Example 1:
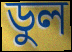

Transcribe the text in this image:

ডুল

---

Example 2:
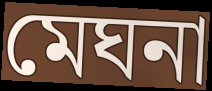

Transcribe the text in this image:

মেঘনা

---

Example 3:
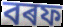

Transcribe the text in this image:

বৰফ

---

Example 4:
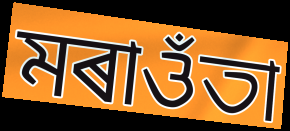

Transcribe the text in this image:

মৰাওঁতা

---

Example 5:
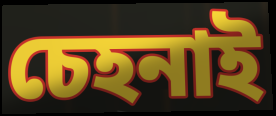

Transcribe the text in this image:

চেহনাই